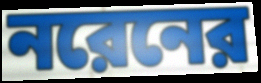
নরেনের